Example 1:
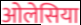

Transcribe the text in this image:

ओलेसिया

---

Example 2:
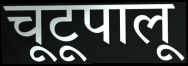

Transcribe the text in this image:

चूटूपालू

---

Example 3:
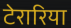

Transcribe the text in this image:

टेरारिया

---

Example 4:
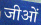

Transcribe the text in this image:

जीओं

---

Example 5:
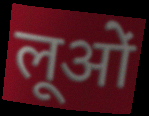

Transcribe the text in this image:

लूओं